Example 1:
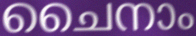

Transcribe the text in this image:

ചൈനാം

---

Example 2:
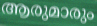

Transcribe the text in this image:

ആരുമാരും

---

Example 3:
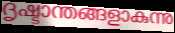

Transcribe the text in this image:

ദൃഷ്ടാന്തങ്ങളാകുന്നു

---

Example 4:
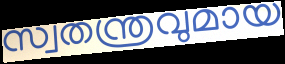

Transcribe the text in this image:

സ്വതന്ത്രവുമായ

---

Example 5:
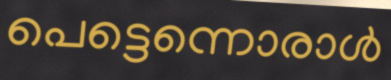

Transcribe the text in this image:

പെട്ടെന്നൊരാൾ